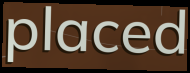
placed